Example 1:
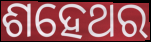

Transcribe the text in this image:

ଶହେଥର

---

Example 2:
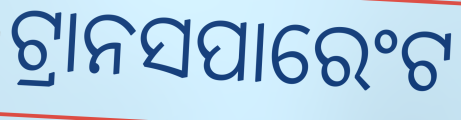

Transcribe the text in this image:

ଟ୍ରାନସପାରେଂଟ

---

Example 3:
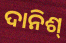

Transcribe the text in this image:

ଦାନିଶ୍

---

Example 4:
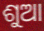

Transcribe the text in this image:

ଶୁଆ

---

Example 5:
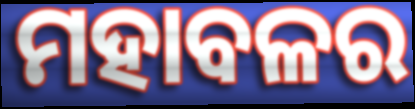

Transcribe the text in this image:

ମହାବଳର